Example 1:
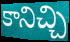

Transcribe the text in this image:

కానిచ్చి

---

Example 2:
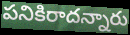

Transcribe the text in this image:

పనికిరాదన్నారు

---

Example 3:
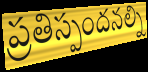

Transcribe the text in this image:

ప్రతిస్పందనల్ని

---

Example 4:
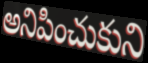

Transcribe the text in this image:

అనిపించుకుని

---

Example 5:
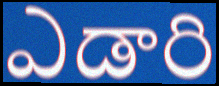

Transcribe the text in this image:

ఎడారి